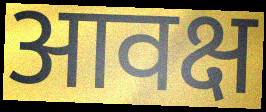
आवक्ष